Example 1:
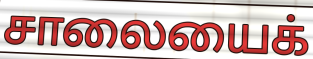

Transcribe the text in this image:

சாலையைக்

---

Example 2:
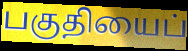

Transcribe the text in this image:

பகுதியைப்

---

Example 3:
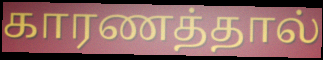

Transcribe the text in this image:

காரணத்தால்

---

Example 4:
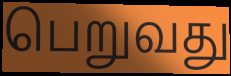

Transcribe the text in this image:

பெறுவது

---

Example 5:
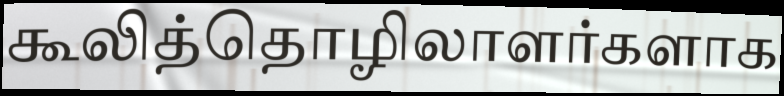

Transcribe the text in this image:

கூலித்தொழிலாளர்களாக